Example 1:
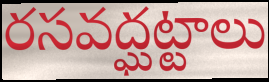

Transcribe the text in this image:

రసవద్ఘట్టాలు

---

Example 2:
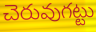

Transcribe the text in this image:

చెరువుగట్టు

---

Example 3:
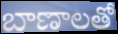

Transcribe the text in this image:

బాణాలతో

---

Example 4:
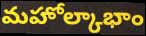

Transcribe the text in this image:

మహోల్కాభాం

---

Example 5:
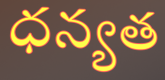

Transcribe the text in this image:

ధన్యత